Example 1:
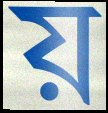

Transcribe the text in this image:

য়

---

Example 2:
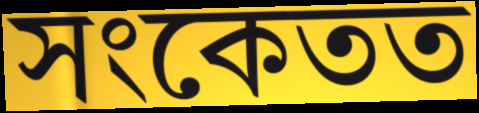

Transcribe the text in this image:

সংকেতত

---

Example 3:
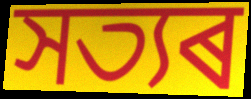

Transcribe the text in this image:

সত্যৰ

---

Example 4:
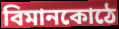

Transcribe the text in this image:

বিমানকোঠে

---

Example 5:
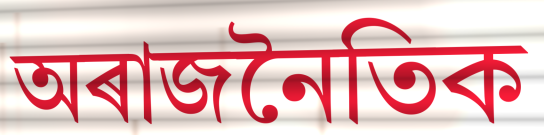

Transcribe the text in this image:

অৰাজনৈতিক